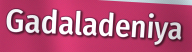
Gadaladeniya